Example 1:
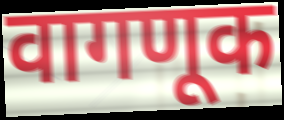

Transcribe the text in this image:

वागणूक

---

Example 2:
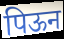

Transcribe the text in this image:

पिऊन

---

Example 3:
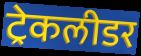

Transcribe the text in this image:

ट्रेकलीडर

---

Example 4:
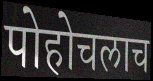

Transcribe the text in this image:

पोहोचलाच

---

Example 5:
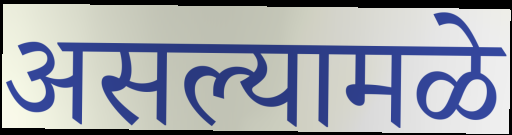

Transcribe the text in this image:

असल्यामळे